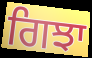
ਗਿਝਾ